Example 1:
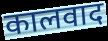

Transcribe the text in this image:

कालवाद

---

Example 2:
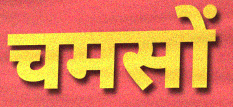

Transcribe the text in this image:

चमसों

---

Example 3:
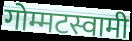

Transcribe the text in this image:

गोम्मटस्वामी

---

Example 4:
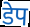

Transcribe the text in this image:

डेप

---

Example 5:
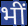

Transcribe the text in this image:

भीं